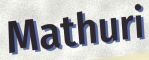
Mathuri